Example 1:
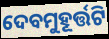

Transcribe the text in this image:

ଦେବମୁହୂର୍ତ୍ତଟି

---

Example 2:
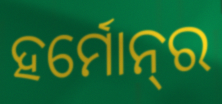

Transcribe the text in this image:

ହର୍ମୋନ୍‌ର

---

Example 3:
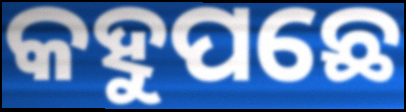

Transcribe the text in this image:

କହୁପଛେ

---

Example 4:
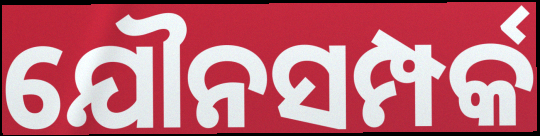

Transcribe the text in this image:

ଯୌନସମ୍ପର୍କ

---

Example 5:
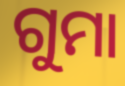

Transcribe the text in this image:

ଗୁମା